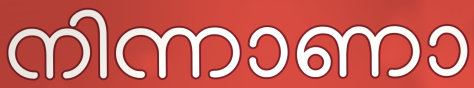
നിന്നാണാ